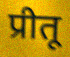
प्रीतू